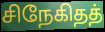
சிநேகிதத்